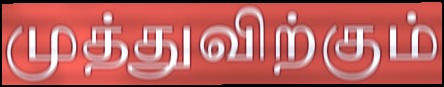
முத்துவிற்கும்